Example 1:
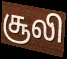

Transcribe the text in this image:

சூலி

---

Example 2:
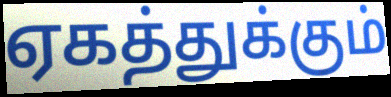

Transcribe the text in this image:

ஏகத்துக்கும்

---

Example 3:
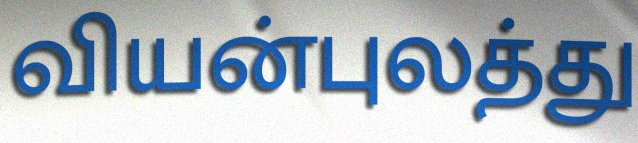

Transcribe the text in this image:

வியன்புலத்து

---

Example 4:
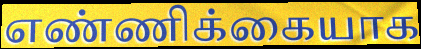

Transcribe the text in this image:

எண்ணிக்கையாக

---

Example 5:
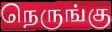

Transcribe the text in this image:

நெருங்கு